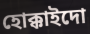
হোক্কাইদো